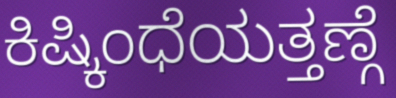
ಕಿಷ್ಕಿಂಧೆಯತ್ತಣ್ಗೆ